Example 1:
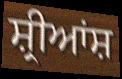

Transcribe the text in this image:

ਸ਼੍ਰੀਆਂਸ਼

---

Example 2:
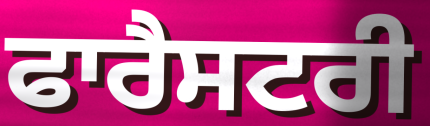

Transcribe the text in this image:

ਫਾਰੈਸਟਰੀ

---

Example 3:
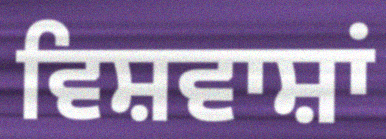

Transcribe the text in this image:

ਵਿਸ਼ਵਾਸ਼ਾਂ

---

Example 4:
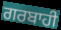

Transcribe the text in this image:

ਗਰਬਾਹੀ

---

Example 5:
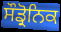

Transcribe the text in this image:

ਸੌਡ੍ਰੋਨਿਕ